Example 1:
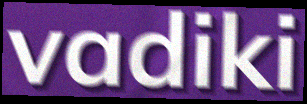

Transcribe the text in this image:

vadiki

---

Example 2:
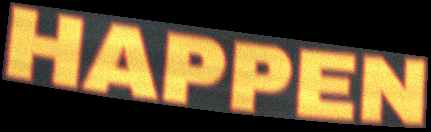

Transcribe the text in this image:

HAPPEN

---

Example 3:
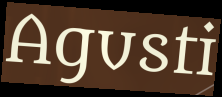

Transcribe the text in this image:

Agusti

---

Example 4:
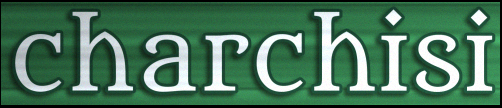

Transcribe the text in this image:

charchisi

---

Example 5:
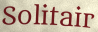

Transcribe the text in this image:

Solitair